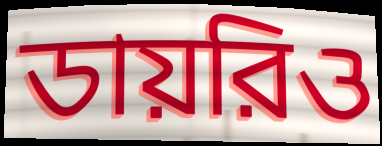
ডায়রিও